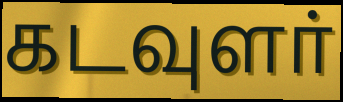
கடவுளர்